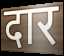
दार